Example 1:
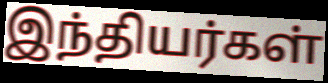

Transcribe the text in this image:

இந்தியர்கள்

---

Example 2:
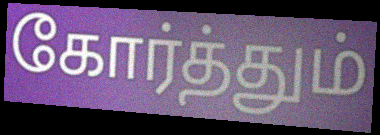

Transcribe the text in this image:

கோர்த்தும்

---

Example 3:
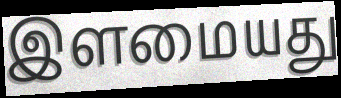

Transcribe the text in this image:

இளமையது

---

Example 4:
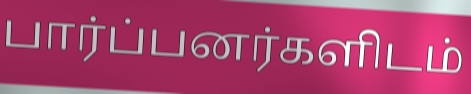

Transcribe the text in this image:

பார்ப்பனர்களிடம்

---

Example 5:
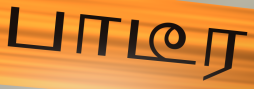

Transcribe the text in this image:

பாடீர